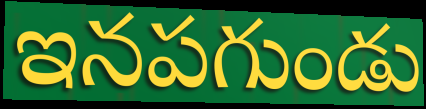
ఇనపగుండు